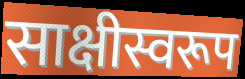
साक्षीस्वरूप